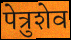
पेत्रुशेव